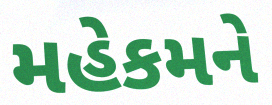
મહેકમને